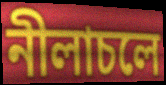
নীলাচলে